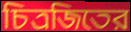
চিত্রজিতের